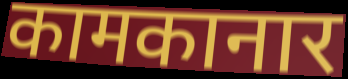
कामकानार